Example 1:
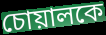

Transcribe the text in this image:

চোয়ালকে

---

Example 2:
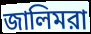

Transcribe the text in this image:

জালিমরা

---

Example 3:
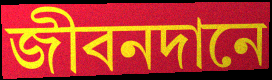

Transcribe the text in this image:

জীবনদানে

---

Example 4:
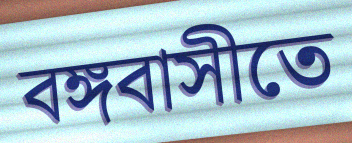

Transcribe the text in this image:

বঙ্গবাসীতে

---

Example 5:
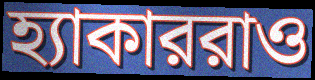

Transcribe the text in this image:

হ্যাকাররাও